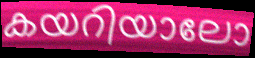
കയറിയാലോ